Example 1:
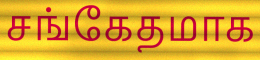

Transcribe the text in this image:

சங்கேதமாக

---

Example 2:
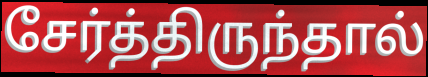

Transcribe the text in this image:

சேர்த்திருந்தால்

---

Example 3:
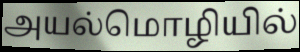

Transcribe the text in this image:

அயல்மொழியில்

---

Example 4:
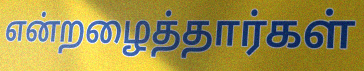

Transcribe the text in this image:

என்றழைத்தார்கள்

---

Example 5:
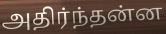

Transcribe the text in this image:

அதிர்ந்தன்ன